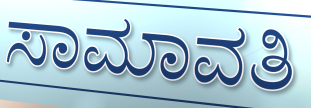
ಸಾಮಾವತಿ